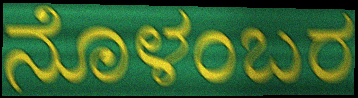
ನೊಳಂಬರ